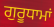
ਗੁਰੂਧਾਮਾਂ